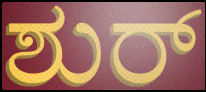
ಶುರ್